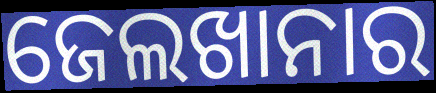
ଜେଲଖାନାର